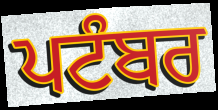
ਪਟੰਬਰ